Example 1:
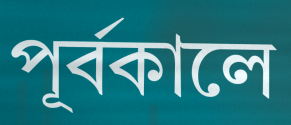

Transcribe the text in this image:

পূর্বকালে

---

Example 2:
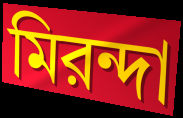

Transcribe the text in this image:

মিরন্দা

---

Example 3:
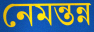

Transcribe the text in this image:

নেমন্তন্ন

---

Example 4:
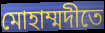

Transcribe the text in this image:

মোহাম্মদীতে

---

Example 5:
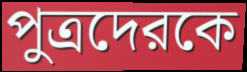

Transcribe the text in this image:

পুত্রদেরকে